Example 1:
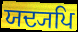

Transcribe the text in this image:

ਯਦ੍ਯਪਿ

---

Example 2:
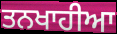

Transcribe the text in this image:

ਤਨਖਾਹੀਆ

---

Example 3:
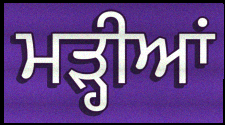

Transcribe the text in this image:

ਮੜ੍ਹੀਆਂ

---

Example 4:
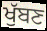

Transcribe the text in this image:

ਖੁੱਬਣ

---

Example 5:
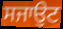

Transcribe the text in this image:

ਸਜਾਉਟ